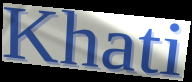
Khati